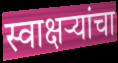
स्वाक्षऱ्यांचा